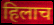
हिलाच